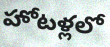
హోటళ్లలో